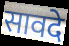
सावदे